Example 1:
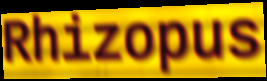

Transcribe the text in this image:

Rhizopus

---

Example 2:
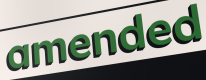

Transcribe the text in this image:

amended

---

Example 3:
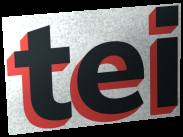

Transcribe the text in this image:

tei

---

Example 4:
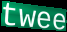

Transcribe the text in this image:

twee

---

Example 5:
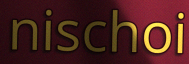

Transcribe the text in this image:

nischoi